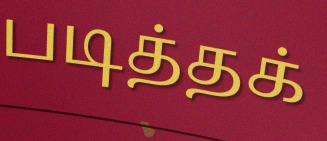
படித்தக்